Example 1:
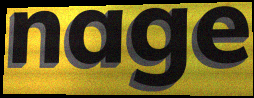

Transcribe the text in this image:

nage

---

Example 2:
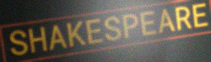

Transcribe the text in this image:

SHAKESPEARE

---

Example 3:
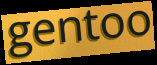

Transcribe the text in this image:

gentoo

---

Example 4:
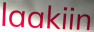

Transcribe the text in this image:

laakiin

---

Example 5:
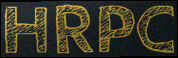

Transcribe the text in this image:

HRPC